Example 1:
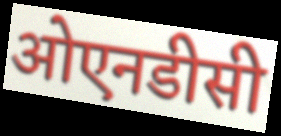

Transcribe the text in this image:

ओएनडीसी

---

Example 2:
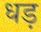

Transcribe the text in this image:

धड़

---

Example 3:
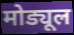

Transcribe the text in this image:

मोड्यूल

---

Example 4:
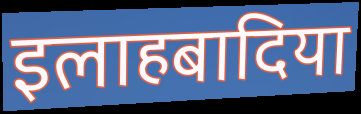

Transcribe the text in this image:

इलाहबादिया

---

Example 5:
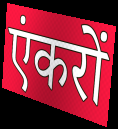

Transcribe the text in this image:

एंकरों